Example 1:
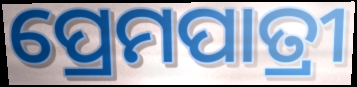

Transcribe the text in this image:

ପ୍ରେମପାତ୍ରୀ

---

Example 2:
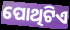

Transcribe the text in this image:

ପୋଥିଟିଏ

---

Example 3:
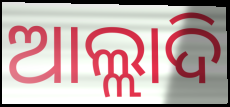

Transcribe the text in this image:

ଆଲ୍ଲାଦି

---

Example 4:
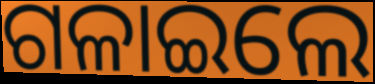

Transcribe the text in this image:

ଗଳାଇଲେ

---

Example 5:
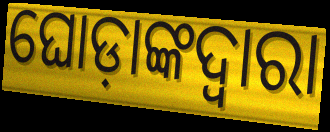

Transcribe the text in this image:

ଘୋଡ଼ାଙ୍କଦ୍ୱାରା